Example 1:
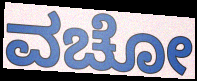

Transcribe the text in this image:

ವಚೋ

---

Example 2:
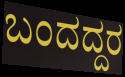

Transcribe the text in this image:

ಬಂದದ್ದರ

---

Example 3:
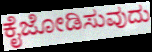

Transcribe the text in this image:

ಕೈಜೋಡಿಸುವುದು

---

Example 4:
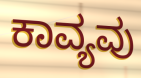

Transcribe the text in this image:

ಕಾವ್ಯವು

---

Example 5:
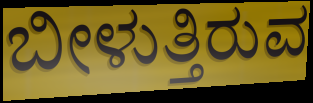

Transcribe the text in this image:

ಬೀಳುತ್ತಿರುವ